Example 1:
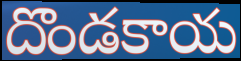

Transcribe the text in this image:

దొండకాయ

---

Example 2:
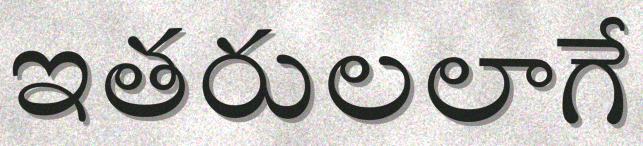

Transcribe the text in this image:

ఇతరులలాగే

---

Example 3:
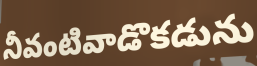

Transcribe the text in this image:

నీవంటివాడొకడును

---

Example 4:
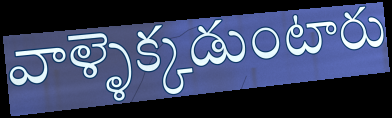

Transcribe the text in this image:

వాళ్ళెక్కడుంటారు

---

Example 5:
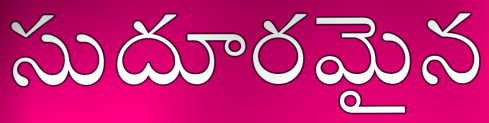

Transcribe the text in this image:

సుదూరమైన